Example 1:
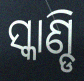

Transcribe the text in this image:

ସ୍କାଣ୍ଡି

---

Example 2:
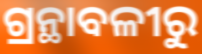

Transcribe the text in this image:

ଗ୍ରନ୍ଥାବଳୀରୁ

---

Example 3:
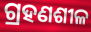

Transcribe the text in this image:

ଗ୍ରହଣଶୀଳ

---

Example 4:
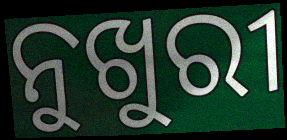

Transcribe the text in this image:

ନୁଖୁରୀ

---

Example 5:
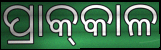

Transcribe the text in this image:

ପ୍ରାକ୍‌କାଳ